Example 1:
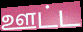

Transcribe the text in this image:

ஊட்ட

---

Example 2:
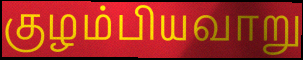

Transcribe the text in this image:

குழம்பியவாறு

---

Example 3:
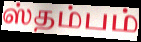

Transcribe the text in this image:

ஸ்தம்பம்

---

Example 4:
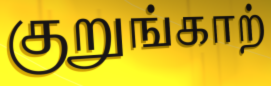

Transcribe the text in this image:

குறுங்காற்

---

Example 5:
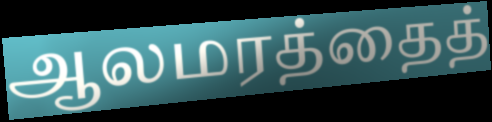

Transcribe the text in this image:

ஆலமரத்தைத்